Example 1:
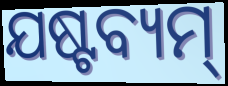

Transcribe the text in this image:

ଯଷ୍ଟବ୍ୟମ୍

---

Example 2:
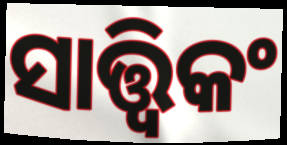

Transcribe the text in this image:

ସାତ୍ତ୍ୱିକଂ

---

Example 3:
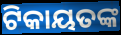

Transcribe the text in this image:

ଟିକାୟତଙ୍କ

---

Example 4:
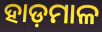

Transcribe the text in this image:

ହାଡ଼ମାଳ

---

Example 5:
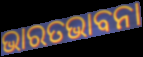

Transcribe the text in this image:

ଭାରତଭାବନା